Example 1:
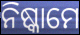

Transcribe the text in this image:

ନିଷ୍କାମେ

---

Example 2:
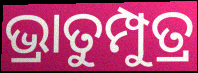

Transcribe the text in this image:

ଭ୍ରାତୁମ୍ପୁତ୍ର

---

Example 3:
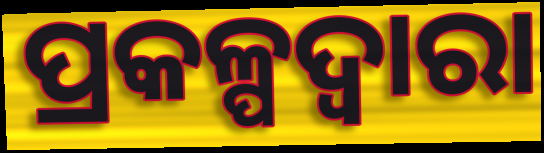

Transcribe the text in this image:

ପ୍ରକଳ୍ପଦ୍ୱାରା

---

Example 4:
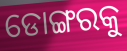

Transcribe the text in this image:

ଡୋଙ୍ଗରକୁ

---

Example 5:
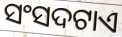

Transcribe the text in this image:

ସଂସଦଟାଏ